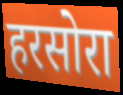
हरसोरा